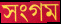
সংগম